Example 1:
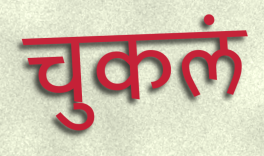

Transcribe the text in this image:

चुकलं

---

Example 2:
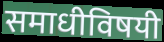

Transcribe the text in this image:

समाधीविषयी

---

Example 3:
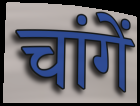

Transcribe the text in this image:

चांगें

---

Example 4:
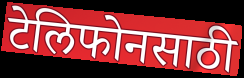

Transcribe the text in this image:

टेलिफोनसाठी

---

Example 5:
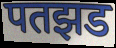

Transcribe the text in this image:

पतझड